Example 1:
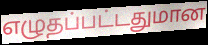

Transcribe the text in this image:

எழுதப்பட்டதுமான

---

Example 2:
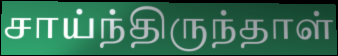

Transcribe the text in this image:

சாய்ந்திருந்தாள்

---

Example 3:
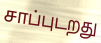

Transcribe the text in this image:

சாப்புடறது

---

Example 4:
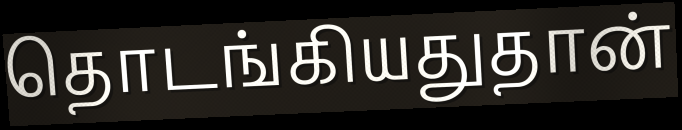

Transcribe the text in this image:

தொடங்கியதுதான்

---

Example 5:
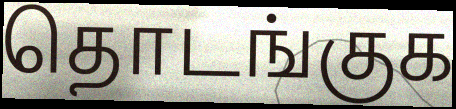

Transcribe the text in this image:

தொடங்குக